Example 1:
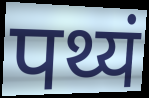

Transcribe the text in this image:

पथ्यं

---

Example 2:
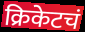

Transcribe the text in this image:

क्रिकेटचं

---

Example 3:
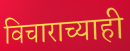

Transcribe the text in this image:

विचाराच्याही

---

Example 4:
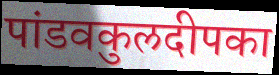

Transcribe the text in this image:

पांडवकुलदीपका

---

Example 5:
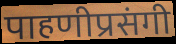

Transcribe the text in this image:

पाहणीप्रसंगी